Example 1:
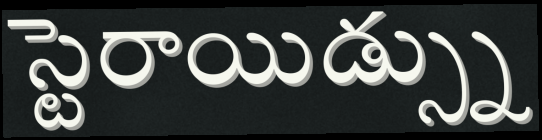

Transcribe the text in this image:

స్టెరాయిడ్స్ను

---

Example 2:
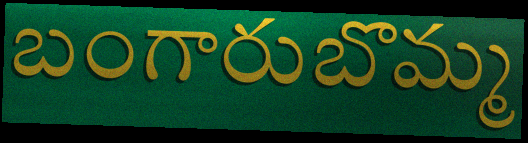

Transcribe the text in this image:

బంగారుబొమ్మ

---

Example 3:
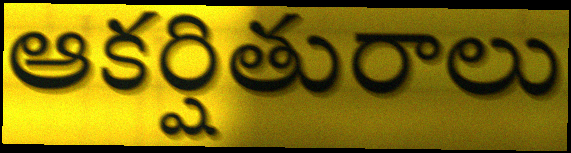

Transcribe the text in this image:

ఆకర్షితురాలు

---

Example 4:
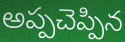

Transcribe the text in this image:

అప్పచెప్పిన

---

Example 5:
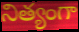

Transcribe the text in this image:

నిత్యంగా